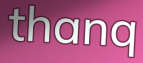
thanq